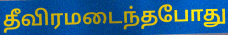
தீவிரமடைந்தபோது